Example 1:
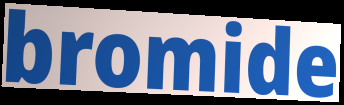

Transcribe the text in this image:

bromide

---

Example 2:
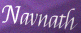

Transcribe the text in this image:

Navnath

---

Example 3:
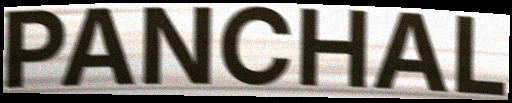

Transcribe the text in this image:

PANCHAL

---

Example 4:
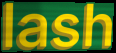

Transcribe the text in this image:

lash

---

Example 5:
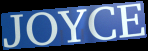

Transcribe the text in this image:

JOYCE